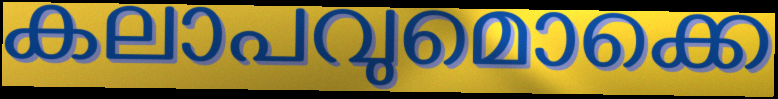
കലാപവുമൊക്കെ